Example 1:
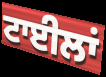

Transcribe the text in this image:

ਟਾਈਲਾਂ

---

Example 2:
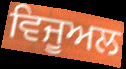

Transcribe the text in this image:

ਵਿਜੂਅਲ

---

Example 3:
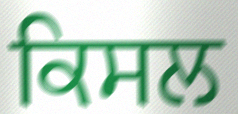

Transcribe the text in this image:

ਕਿਸਲ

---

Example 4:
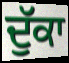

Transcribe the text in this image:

ਦੁੱਕਾ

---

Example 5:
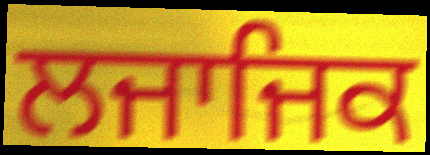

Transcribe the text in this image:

ਲਜਾਜਿਕ